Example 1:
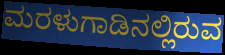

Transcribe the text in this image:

ಮರಳುಗಾಡಿನಲ್ಲಿರುವ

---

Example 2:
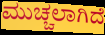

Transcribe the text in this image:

ಮುಚ್ಚಲಾಗಿದೆ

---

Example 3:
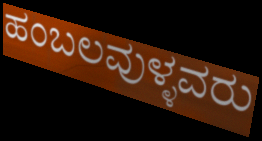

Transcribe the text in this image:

ಹಂಬಲವುಳ್ಳವರು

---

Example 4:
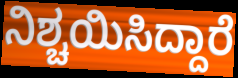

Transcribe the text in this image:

ನಿಶ್ಚಯಿಸಿದ್ದಾರೆ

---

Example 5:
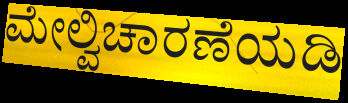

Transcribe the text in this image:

ಮೇಲ್ವಿಚಾರಣೆಯಡಿ